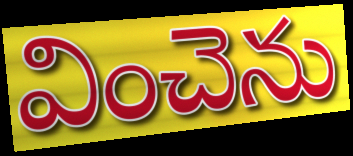
వించెను